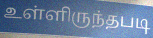
உள்ளிருந்தபடி